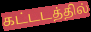
கட்டடத்தில்